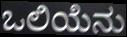
ಒಲಿಯೆನು